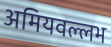
अमियवल्लभ